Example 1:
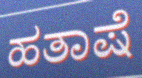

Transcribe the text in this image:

ಹತಾಷೆ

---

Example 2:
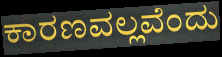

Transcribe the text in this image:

ಕಾರಣವಲ್ಲವೆಂದು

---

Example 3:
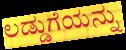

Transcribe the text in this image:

ಲಡ್ಡುಗೆಯನ್ನು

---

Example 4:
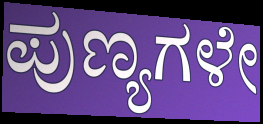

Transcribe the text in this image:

ಪುಣ್ಯಗಳೇ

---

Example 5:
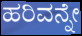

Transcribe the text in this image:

ಹರಿವನ್ನೇ